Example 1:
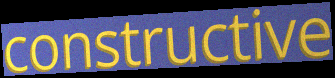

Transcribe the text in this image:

constructive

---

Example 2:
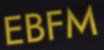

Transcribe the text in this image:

EBFM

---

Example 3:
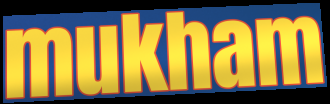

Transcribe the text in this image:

mukham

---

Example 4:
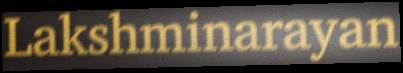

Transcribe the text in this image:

Lakshminarayan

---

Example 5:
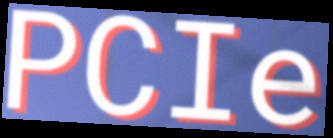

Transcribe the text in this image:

PCIe